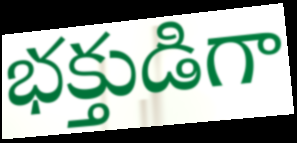
భక్తుడిగా